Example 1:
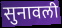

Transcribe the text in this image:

सुनावली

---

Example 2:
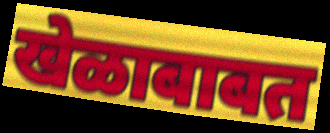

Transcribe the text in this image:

खेळाबाबत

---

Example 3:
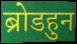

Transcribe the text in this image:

ब्रोडहुन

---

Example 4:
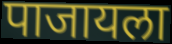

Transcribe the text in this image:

पाजायला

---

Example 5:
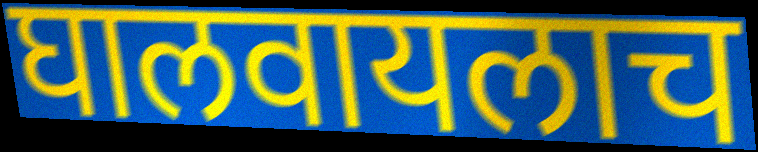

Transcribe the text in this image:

घालवायलाच